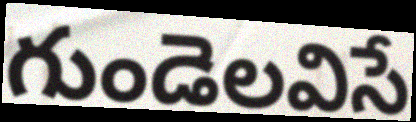
గుండెలవిసే